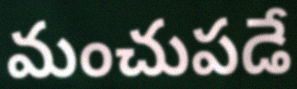
మంచుపడే